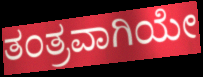
ತಂತ್ರವಾಗಿಯೇ